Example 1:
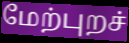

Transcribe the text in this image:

மேற்புறச்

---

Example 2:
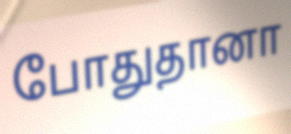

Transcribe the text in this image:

போதுதானா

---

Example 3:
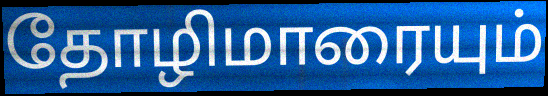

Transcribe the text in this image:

தோழிமாரையும்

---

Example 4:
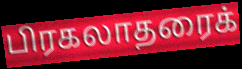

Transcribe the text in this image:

பிரகலாதரைக்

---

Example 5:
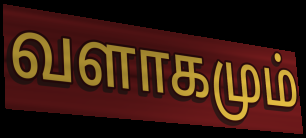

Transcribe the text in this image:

வளாகமும்